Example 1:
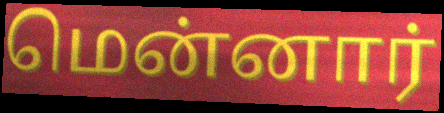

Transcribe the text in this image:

மென்னார்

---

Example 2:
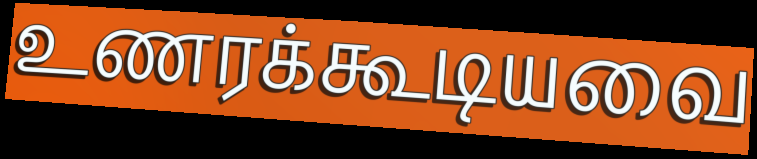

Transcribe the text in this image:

உணரக்கூடியவை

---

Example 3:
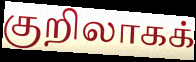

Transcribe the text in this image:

குறிலாகக்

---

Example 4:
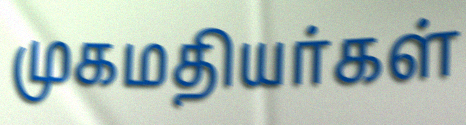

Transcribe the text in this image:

முகமதியர்கள்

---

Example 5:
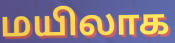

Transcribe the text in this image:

மயிலாக